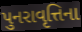
પુનરાવૃત્તિના